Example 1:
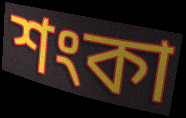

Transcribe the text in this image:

শংকা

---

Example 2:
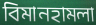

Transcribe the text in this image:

বিমানহামলা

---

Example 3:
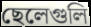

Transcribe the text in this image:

ছেলেগুলি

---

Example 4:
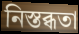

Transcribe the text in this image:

নিস্তব্ধতা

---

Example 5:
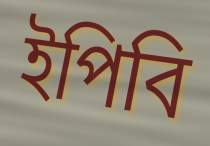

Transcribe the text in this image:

ইপিবি